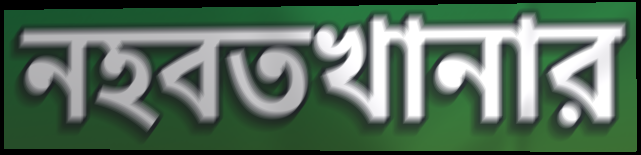
নহবতখানার